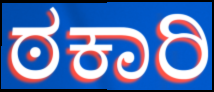
ಠಕಾರಿ